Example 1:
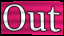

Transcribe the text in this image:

Out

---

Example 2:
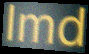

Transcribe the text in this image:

Imd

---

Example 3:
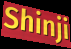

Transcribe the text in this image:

Shinji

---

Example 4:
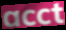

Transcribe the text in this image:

acct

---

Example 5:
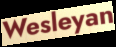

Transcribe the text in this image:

Wesleyan